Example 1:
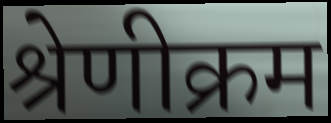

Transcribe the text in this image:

श्रेणीक्रम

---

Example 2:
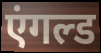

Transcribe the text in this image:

एंगल्ड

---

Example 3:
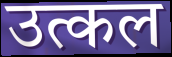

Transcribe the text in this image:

उत्कल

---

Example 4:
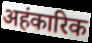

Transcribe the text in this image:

अहंकारिक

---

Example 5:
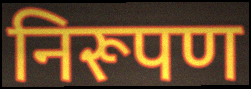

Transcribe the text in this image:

निरूपण